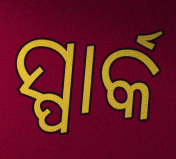
ସ୍ପାର୍କ